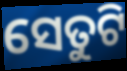
ସେତୁଟି